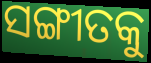
ସଙ୍ଗୀତକୁ